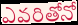
ఎవరితోనో